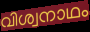
വിശ്വനാഥം